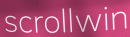
scrollwin